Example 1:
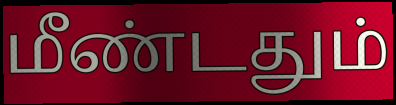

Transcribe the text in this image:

மீண்டதும்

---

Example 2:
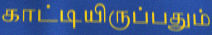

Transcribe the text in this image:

காட்டியிருப்பதும்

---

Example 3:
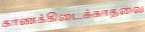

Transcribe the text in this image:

காணக்கிடைக்காதவை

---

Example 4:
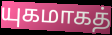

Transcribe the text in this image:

யுகமாகத்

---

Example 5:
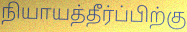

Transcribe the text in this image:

நியாயத்தீர்ப்பிற்கு